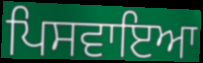
ਪਿਸਵਾਇਆ